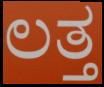
ಲತ್ತ